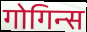
गोगिन्स